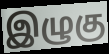
இழுகு